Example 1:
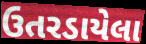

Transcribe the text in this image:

ઉતરડાયેલા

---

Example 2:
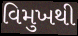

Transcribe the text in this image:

વિમુખથી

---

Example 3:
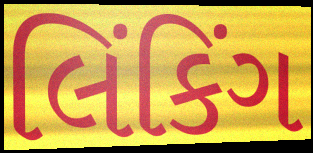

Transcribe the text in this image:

લિંકિંગ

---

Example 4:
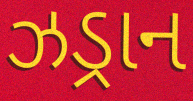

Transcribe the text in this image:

ઝડ્રાન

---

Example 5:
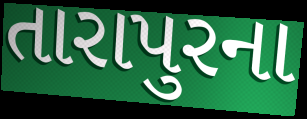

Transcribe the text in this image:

તારાપુરના